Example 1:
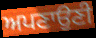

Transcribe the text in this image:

ਅਪਣਾਉਣੀ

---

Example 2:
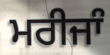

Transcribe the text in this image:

ਮਰੀਜਾੰ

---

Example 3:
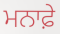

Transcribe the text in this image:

ਮਨਾਫ਼ੇ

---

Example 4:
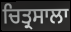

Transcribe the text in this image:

ਚਿਤ੍ਰਸਾਲਾ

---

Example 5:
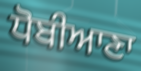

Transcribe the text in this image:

ਧੋਬੀਆਣਾ